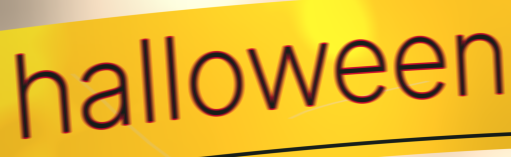
halloween